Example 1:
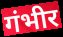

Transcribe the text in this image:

गंभीर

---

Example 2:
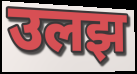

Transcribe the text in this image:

उलझ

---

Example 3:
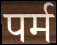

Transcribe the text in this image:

पर्म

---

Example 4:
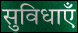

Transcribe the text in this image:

सुविधाएँ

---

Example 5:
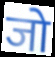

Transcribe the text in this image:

जो